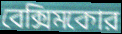
বেক্সিমকোর